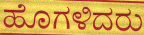
ಹೊಗಳಿದರು